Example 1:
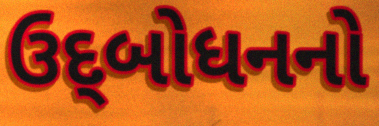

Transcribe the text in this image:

ઉદ્‌બોધનનો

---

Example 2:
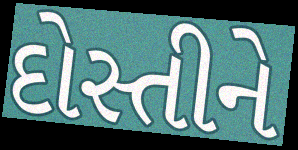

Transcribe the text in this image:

દોસ્તીને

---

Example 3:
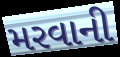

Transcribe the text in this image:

મરવાની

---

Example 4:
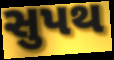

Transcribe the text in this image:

સુપથ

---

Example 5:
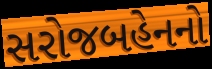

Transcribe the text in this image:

સરોજબહેનનો